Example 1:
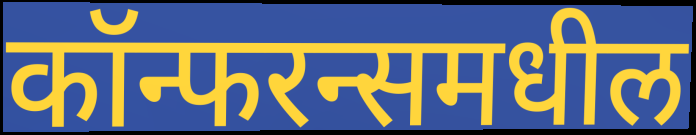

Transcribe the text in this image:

कॉन्फरन्समधील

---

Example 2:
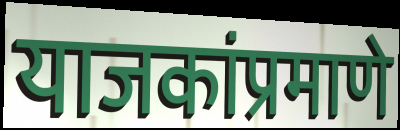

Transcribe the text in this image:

याजकांप्रमाणे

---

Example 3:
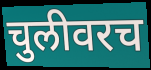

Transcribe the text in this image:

चुलीवरच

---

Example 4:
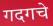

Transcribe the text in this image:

गदगचे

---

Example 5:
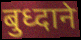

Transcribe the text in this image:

बुध्दाने